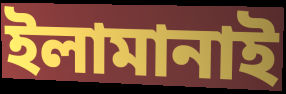
ইলামানাই